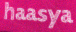
haasya